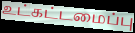
உட்கட்டமைப்பு